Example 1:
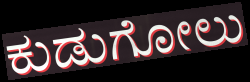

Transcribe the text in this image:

ಕುಡುಗೋಲು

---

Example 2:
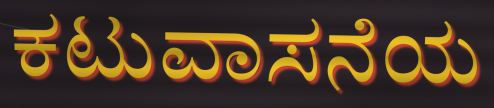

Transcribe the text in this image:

ಕಟುವಾಸನೆಯ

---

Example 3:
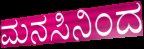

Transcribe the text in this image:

ಮನಸಿನಿಂದ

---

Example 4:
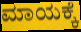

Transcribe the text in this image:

ಮಾಯಕ್ಕೆ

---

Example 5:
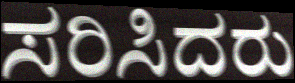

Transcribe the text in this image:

ಸರಿಸಿದರು